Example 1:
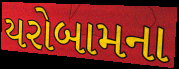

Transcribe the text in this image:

યરોબામના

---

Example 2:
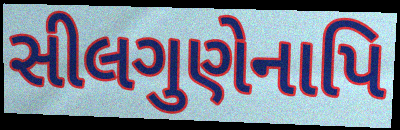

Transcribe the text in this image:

સીલગુણેનાપિ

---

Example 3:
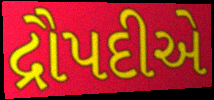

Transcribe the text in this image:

દ્રૌપદીએ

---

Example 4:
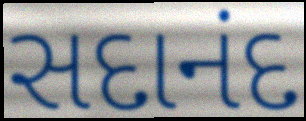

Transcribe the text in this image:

સદાનંદ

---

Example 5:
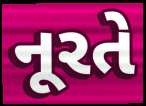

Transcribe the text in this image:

નૂરતે